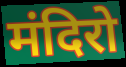
मंदिरो